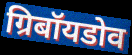
ग्रिबॉयडोव